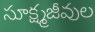
సూక్ష్మజీవుల